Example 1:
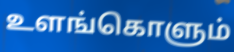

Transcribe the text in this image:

உளங்கொளும்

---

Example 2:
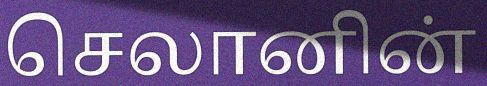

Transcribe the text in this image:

செலானின்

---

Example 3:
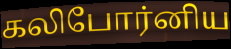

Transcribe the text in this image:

கலிபோர்னிய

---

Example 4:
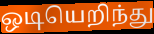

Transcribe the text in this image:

ஒடியெறிந்து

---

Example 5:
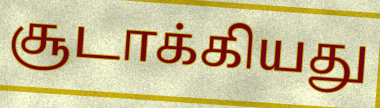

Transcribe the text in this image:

சூடாக்கியது